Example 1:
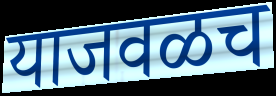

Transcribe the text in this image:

याजवळच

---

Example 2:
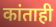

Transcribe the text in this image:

कांताही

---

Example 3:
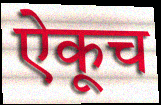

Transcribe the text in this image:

ऐकूच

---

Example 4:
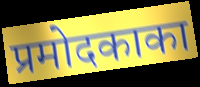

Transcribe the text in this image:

प्रमोदकाका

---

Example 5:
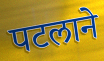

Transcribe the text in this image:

पटलाने